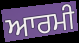
ਆਰਮੀ